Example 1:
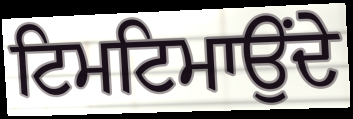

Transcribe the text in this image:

ਟਿਮਟਿਮਾਉਂਦੇ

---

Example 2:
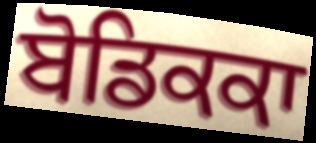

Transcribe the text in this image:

ਬੋਡਿਕਕਾ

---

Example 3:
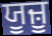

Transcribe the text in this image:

ਯੂਜ਼ੂ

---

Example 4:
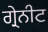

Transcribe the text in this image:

ਗ੍ਰੇਨੀਟ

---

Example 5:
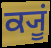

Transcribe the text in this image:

ਕ੍ਯੂਂ